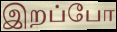
இறப்போ